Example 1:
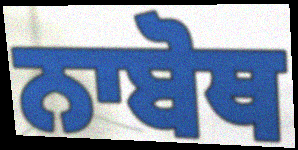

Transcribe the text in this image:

ਨਾਬੋਥ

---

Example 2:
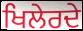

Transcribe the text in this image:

ਖਿਲੇਰਦੇ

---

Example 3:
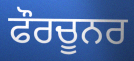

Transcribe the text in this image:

ਫੌਰਚੂਨਰ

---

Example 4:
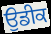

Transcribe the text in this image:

ਉਡੀਕ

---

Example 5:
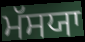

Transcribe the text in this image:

ਮੱਸਯਾ